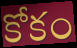
కోకం